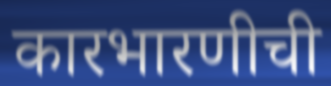
कारभारणीची